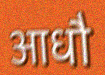
आधौ